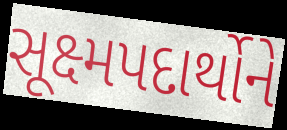
સૂક્ષ્મપદાર્થોને